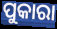
ପୁକାରା